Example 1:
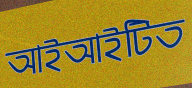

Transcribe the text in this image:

আইআইটিত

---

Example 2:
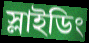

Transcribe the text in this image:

স্লাইডিং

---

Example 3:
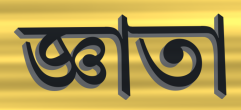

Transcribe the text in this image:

জ্ঞাতা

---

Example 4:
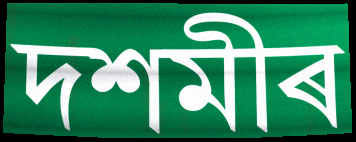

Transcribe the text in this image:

দশমীৰ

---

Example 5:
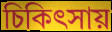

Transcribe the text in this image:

চিকিৎসায়